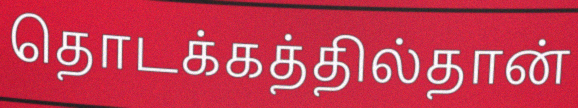
தொடக்கத்தில்தான்